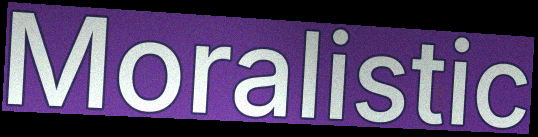
Moralistic